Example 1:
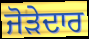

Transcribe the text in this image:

ਜੋੜੇਦਾਰ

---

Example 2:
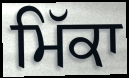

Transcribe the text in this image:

ਮਿੱਕਾ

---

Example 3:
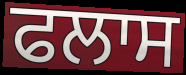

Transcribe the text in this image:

ਫਲਾਸ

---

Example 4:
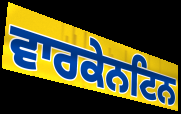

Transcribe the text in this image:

ਵਾਰਕੇਨਟਿਨ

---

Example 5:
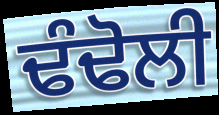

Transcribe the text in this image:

ਢੰਢੋਲੀ